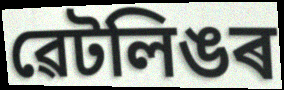
ৱেটলিঙৰ